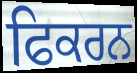
ਫਿਕਰਨ